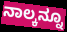
ನಾಲ್ಕನ್ನೂ